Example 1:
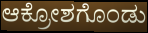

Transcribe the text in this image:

ಆಕ್ರೋಶಗೊಂಡು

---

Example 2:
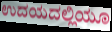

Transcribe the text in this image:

ಉದಯದಲ್ಲಿಯೂ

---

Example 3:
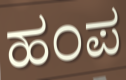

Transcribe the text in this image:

ಹಂಪ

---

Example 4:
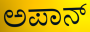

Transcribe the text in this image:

ಅಪಾನ್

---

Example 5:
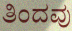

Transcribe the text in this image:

ತಿಂದವು